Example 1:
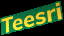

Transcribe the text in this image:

Teesri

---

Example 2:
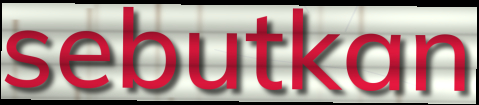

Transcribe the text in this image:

sebutkan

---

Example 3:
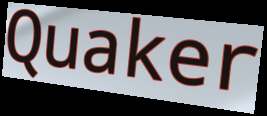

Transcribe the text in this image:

Quaker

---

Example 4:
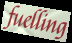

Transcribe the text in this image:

fuelling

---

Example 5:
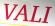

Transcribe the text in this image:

VALI